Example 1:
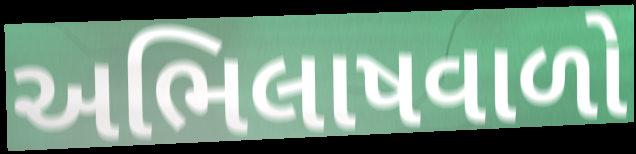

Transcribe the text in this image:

અભિલાષવાળો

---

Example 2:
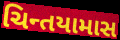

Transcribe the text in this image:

ચિન્તયામાસ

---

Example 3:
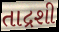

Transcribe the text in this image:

તાદ્રશી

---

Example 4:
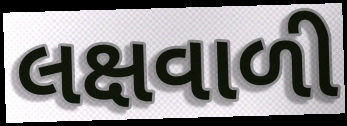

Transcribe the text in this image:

લક્ષવાળી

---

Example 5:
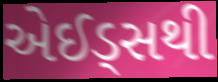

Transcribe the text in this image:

એઈડ્સથી